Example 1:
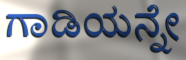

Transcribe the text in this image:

ಗಾಡಿಯನ್ನೇ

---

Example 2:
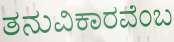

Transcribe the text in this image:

ತನುವಿಕಾರವೆಂಬ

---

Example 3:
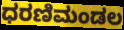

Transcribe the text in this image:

ಧರಣಿಮಂಡಲ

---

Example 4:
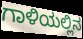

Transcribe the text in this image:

ಗಾಳಿಯಲ್ಲಿನ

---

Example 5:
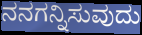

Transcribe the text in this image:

ನನಗನ್ನಿಸುವುದು